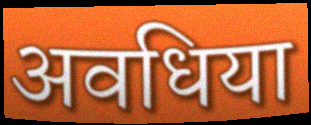
अवधिया